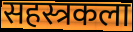
सहस्त्रकला